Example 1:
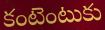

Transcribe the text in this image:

కంటెంటుకు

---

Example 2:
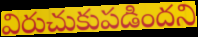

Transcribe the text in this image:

విరుచుకుపడిందని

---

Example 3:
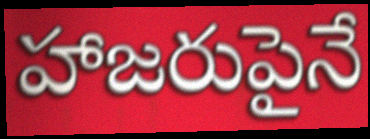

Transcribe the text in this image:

హాజరుపైనే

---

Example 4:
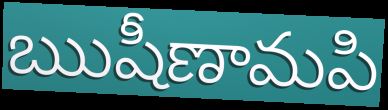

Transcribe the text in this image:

ఋషీణామపి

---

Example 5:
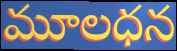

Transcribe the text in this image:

మూలధన